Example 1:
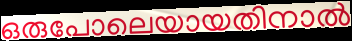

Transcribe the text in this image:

ഒരുപോലെയായതിനാൽ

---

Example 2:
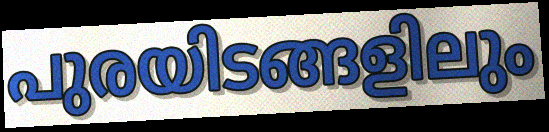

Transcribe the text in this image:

പുരയിടങ്ങളിലും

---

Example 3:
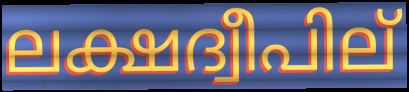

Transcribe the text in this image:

ലക്ഷദ്വീപില്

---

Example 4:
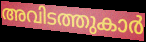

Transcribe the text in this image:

അവിടത്തുകാർ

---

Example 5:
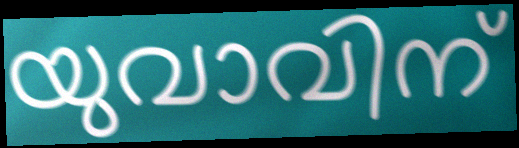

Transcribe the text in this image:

യുവാവിന്